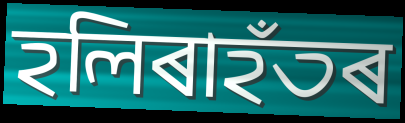
হলিৰাহঁতৰ